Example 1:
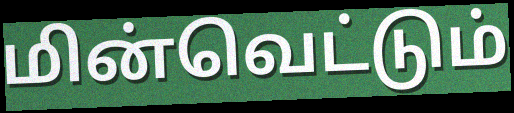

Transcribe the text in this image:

மின்வெட்டும்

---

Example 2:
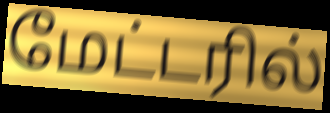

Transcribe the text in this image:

மேட்டரில்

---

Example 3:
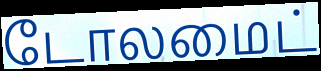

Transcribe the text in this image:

டோலமைட்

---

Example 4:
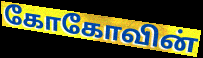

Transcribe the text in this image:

கோகோவின்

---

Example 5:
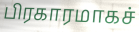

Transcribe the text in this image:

பிரகாரமாகச்